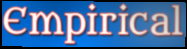
Empirical